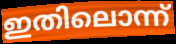
ഇതിലൊന്ന്